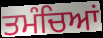
ਤਮੰਚਿਆਂ